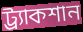
ট্র্যাকশান